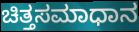
ಚಿತ್ತಸಮಾಧಾನ